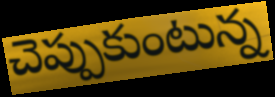
చెప్పుకుంటున్న